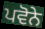
ਪਵੋਨੇ